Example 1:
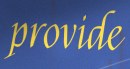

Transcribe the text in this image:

provide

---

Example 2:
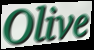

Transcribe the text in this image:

Olive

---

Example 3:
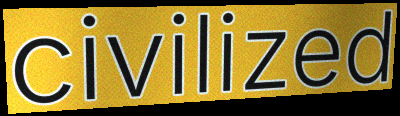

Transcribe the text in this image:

civilized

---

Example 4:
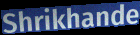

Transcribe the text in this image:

Shrikhande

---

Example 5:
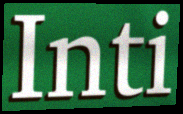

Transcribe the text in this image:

Inti